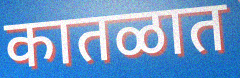
कातळात